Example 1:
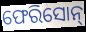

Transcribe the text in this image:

ଫେରିସୋନ୍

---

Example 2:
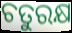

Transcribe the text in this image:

ଚତୁରକ୍ଷ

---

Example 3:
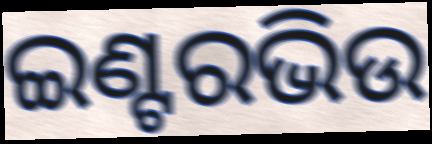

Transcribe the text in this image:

ଇଣ୍ଟରଭିଉ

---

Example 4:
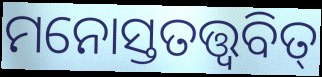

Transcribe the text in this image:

ମନୋସ୍ତତତ୍ତ୍ୱବିତ୍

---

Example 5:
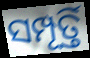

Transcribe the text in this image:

ସମ୍ପୂର୍ତ୍ତି